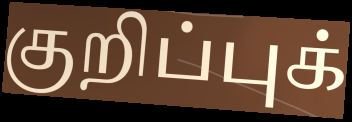
குறிப்புக்